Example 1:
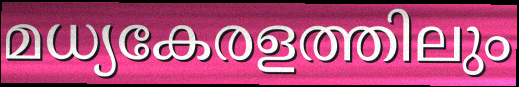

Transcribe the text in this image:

മധ്യകേരളത്തിലും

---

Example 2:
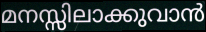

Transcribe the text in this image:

മനസ്സിലാക്കുവാൻ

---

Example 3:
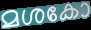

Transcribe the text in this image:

മശകോ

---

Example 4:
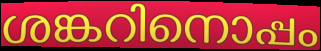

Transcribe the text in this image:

ശങ്കറിനൊപ്പം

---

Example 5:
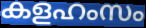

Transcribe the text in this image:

കളഹംസം